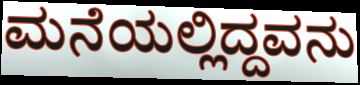
ಮನೆಯಲ್ಲಿದ್ದವನು